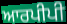
ਆਰਪੀਪੀ